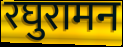
रघुरामन